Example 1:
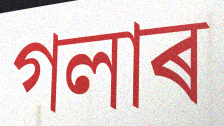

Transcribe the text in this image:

গলাৰ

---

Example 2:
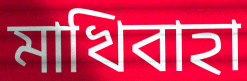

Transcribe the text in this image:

মাখিবাহা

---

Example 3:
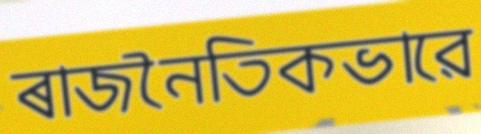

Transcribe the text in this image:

ৰাজনৈতিকভাৱে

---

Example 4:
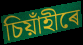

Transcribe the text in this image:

চিয়াঁহীৰে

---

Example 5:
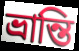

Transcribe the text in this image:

ভ্ৰান্তি